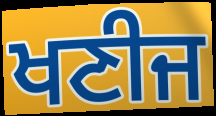
ਖਣੀਜ